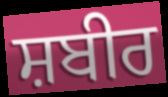
ਸ਼ਬੀਰ